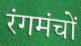
रंगमंचों